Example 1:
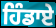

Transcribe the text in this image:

ਹਿੰਡਾਏ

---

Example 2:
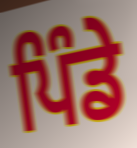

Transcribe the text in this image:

ਪਿੰਡੇ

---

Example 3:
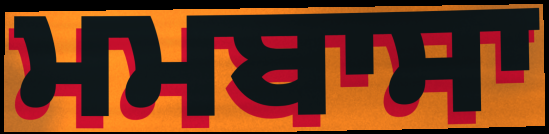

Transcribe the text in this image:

ਮਮਬਾਸਾ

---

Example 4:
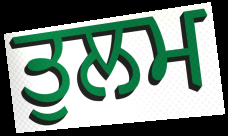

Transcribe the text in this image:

ਤੁਲਮ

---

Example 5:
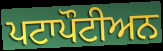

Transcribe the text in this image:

ਪਟਾਪੌਟੀਅਨ